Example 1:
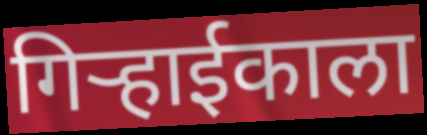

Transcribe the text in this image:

गिर्‍हाईकाला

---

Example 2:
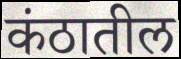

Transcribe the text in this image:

कंठातील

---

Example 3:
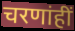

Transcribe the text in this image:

चरणांहीं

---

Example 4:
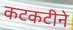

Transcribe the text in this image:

कटकटीने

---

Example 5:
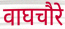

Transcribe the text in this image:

वाघचौरे